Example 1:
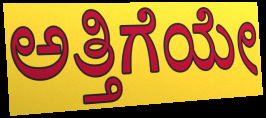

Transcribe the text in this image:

ಅತ್ತಿಗೆಯೇ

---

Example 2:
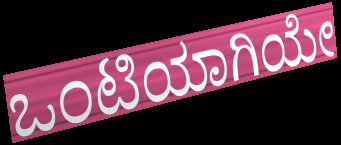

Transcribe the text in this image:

ಒಂಟಿಯಾಗಿಯೇ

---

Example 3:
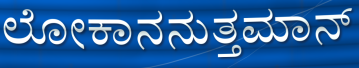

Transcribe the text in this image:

ಲೋಕಾನನುತ್ತಮಾನ್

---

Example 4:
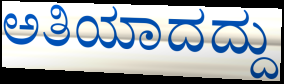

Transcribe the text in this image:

ಅತಿಯಾದದ್ದು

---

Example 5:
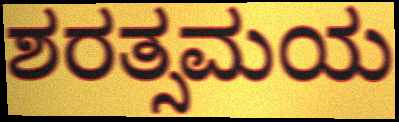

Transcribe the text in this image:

ಶರತ್ಸಮಯ